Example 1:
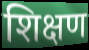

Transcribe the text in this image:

शिक्षण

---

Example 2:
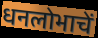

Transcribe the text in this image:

धनलोभाचें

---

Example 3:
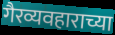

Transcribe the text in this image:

गैरव्यवहाराच्या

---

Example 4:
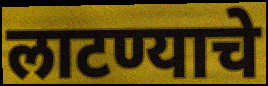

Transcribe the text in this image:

लाटण्याचे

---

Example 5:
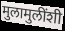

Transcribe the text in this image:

मुलामुलींशी